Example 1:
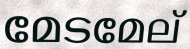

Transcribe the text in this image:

മേടമേല്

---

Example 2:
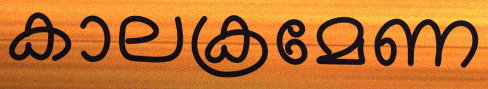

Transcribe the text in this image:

കാലക്രമേണ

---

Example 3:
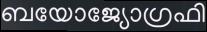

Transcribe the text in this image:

ബയോജ്യോഗ്രഫി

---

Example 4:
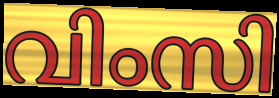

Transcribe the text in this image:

വിംസി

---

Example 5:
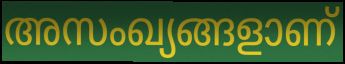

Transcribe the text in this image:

അസംഖ്യങ്ങളാണ്